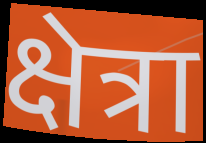
क्षेत्रा